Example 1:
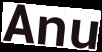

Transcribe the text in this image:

Anu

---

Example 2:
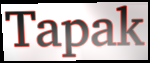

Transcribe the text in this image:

Tapak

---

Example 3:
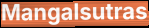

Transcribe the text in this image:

Mangalsutras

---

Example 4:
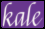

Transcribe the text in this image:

kale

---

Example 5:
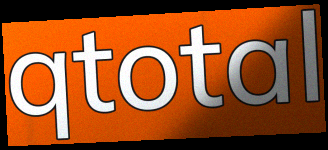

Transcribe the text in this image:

qtotal